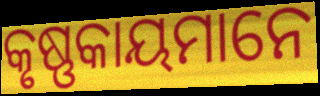
କୃଷ୍ଣକାୟମାନେ